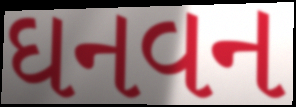
ઘનવન